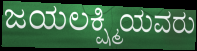
ಜಯಲಕ್ಷ್ಮಿಯವರು